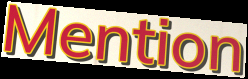
Mention